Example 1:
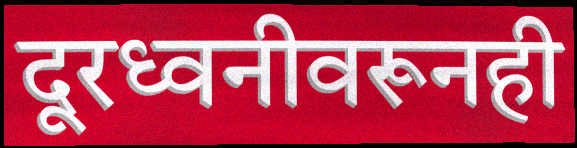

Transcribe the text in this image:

दूरध्वनीवरूनही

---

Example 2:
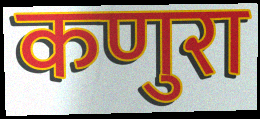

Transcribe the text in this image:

कणुरा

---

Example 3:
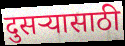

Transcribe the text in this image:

दुसऱ्यासाठी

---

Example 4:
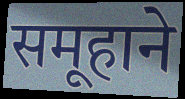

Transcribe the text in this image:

समूहाने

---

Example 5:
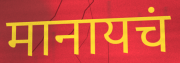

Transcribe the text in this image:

मानायचं